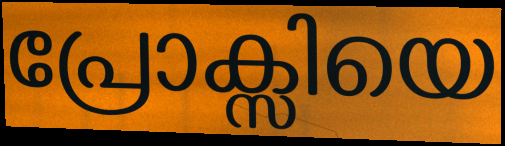
പ്രോക്സിയെ